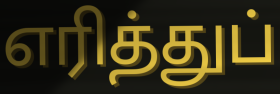
எரித்துப்